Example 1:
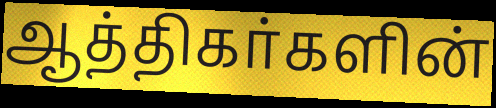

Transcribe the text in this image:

ஆத்திகர்களின்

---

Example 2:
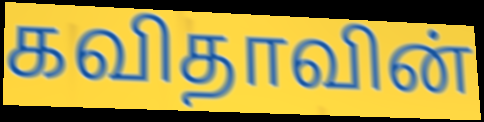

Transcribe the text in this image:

கவிதாவின்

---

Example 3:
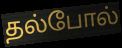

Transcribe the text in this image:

தல்போல்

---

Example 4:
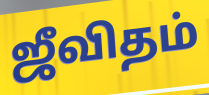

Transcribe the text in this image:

ஜீவிதம்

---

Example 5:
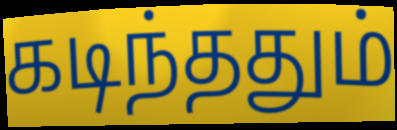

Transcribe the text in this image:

கடிந்ததும்